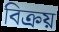
বিক্রয়